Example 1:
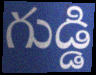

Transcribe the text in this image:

గుడ్డి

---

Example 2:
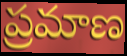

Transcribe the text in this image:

ప్రమాణ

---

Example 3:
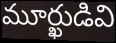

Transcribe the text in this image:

మూర్ఖుడివి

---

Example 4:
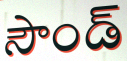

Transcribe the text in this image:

సౌండ్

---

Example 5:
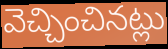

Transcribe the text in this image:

వెచ్చించినట్లు